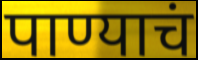
पाण्याचं